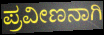
ಪ್ರವೀಣನಾಗಿ